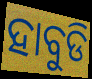
ହାବୁଡି